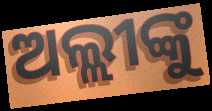
ଅଲ୍ଲୀଙ୍କୁ